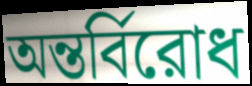
অন্তর্বিরোধ